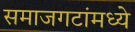
समाजगटांमध्ये